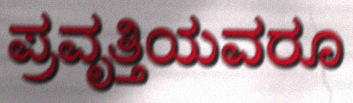
ಪ್ರವೃತ್ತಿಯವರೂ